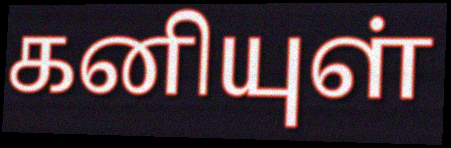
கனியுள்